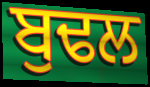
ਬੁਢਲ